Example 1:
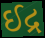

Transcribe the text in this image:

ઈદ્ર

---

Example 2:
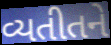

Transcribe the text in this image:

વ્યતીતને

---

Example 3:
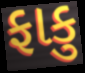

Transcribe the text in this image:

ફાકુ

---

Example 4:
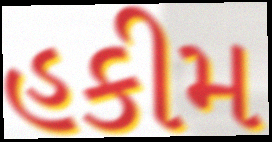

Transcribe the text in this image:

હકીમ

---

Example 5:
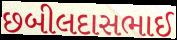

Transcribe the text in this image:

છબીલદાસભાઈ